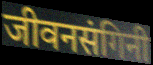
जीवनसंगिनी